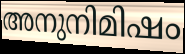
അനുനിമിഷം